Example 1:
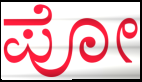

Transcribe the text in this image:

ಪೋ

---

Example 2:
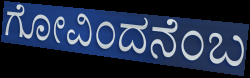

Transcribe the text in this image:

ಗೋವಿಂದನೆಂಬ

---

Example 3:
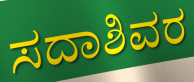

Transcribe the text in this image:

ಸದಾಶಿವರ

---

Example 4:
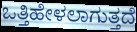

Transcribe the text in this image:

ಒತ್ತಿಹೇಳಲಾಗುತ್ತದೆ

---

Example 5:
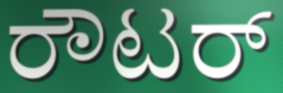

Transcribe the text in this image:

ರೌಟರ್